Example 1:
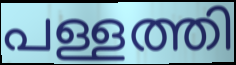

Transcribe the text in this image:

പള്ളത്തി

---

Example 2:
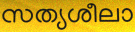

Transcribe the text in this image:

സത്യശീലാ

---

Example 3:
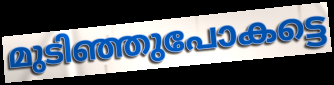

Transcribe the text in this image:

മുടിഞ്ഞുപോകട്ടെ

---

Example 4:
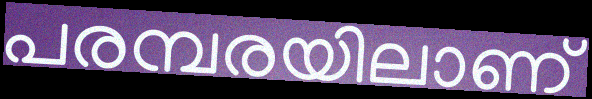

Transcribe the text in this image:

പരമ്പരയിലാണ്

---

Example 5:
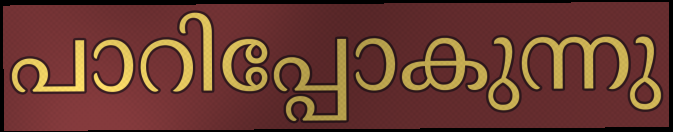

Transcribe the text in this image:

പാറിപ്പോകുന്നു